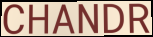
CHANDR